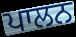
ਪਾਲਨ